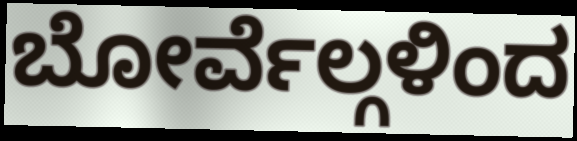
ಬೋರ್ವೆಲ್ಗಳಿಂದ